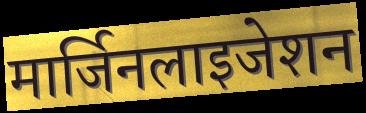
मार्जिनलाइजेशन